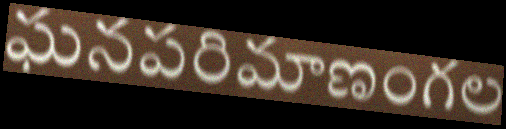
ఘనపరిమాణంగల